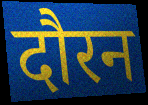
दौरन